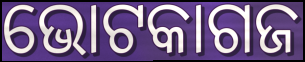
ଭୋଟକାଗଜ